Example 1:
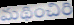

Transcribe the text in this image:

మథించిరి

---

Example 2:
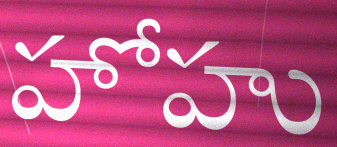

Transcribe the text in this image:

హోహు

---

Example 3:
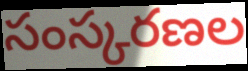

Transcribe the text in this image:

సంస్కరణల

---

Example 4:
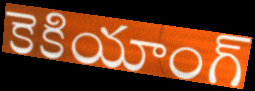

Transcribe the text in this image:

కెకియాంగ్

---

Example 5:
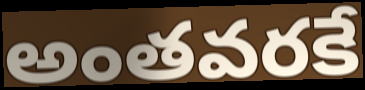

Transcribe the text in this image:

అంతవరకే